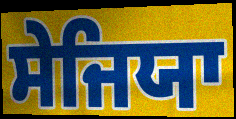
ਸੇਜਿਯਾ